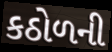
કઠોળની